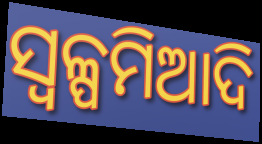
ସ୍ବଳ୍ପମିଆଦି